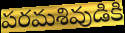
పరమశివుడికి